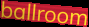
ballroom